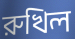
রুখিল